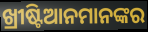
ଖ୍ରୀଷ୍ଟିଆନମାନଙ୍କର